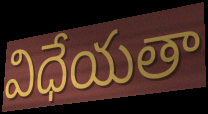
విధేయతా